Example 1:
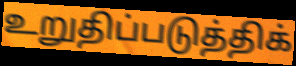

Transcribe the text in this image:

உறுதிப்படுத்திக்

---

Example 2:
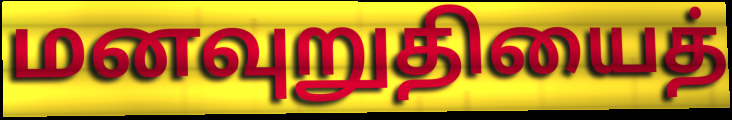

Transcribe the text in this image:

மனவுறுதியைத்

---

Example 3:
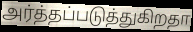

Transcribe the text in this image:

அர்த்தப்படுத்துகிறதா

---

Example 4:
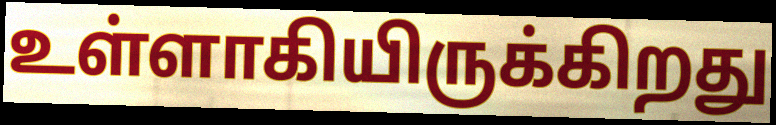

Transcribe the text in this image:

உள்ளாகியிருக்கிறது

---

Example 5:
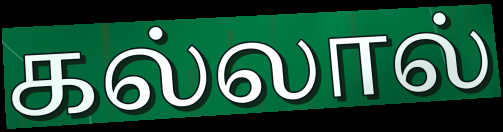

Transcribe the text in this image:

கல்லால்